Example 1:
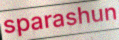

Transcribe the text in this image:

sparashun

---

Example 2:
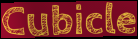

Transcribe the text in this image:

Cubicle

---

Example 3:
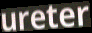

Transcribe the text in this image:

ureter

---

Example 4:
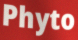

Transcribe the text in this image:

Phyto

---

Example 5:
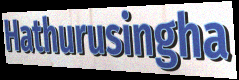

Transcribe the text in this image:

Hathurusingha